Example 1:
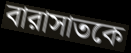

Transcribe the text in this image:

বারাসাতকে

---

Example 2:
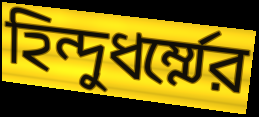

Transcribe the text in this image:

হিন্দুধর্ম্মের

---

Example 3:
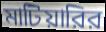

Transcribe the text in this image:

মাটিয়ারির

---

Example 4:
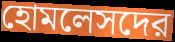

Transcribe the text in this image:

হোমলেসদের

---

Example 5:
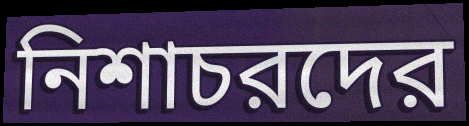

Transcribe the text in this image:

নিশাচরদের